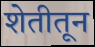
शेतीतून